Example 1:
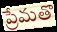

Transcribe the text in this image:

ప్రేమతొ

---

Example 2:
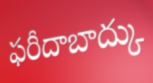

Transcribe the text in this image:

ఫరీదాబాద్కు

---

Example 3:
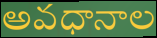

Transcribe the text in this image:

అవధానాల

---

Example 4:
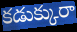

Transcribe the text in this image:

కడుక్కురా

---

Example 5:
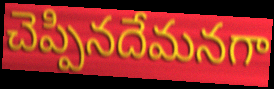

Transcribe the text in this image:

చెప్పినదేమనగా